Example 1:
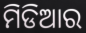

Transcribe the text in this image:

ମିଡିଆର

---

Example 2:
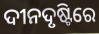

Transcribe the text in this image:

ଦୀନଦୃଷ୍ଟିରେ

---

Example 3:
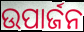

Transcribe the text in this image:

ଉପାର୍ଜନ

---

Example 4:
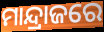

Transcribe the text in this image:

ମାନ୍ଦ୍ରାଜରେ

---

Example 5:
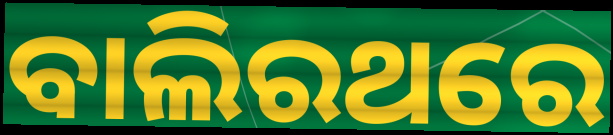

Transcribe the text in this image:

ବାଲିରଥରେ